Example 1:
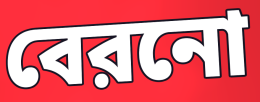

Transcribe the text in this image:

বেরনো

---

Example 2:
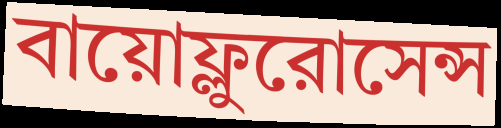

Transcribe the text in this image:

বায়োফ্লুরোসেন্স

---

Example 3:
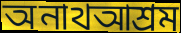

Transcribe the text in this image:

অনাথআশ্রম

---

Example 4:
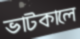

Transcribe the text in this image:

ভাটকালে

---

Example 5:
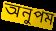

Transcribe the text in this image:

অনুপম